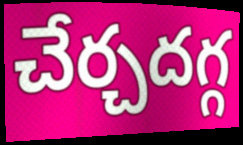
చేర్చదగ్గ